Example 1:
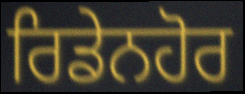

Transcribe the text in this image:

ਰਿਡੇਨਹੋਰ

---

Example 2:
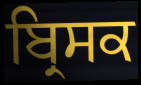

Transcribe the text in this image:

ਬ੍ਰਿਸਕ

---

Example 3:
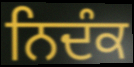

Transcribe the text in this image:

ਨਿਦੰਕ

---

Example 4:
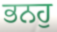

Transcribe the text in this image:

ਭਨਹੁ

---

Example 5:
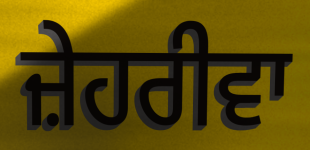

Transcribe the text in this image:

ਜ਼ੇਹਰੀਵਾ